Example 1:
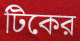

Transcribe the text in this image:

টিকের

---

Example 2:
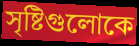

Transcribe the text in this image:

সৃষ্টিগুলোকে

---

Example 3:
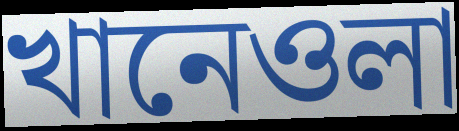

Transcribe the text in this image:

খানেওলা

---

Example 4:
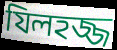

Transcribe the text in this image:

যিলহজ্জ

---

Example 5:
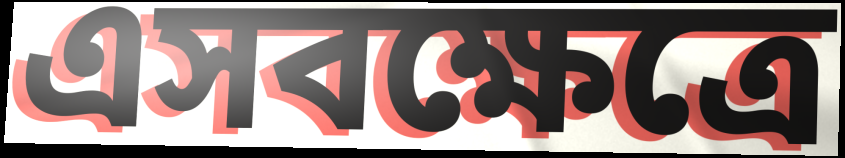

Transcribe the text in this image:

এসবক্ষেত্রে